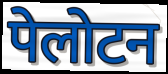
पेलोटन